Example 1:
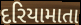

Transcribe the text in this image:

દરિયામાતા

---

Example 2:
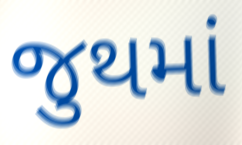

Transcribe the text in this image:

જુથમાં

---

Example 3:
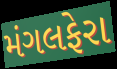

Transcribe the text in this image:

મંગલફેરા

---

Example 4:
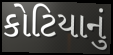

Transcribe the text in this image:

કોટિયાનું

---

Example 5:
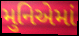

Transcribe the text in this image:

મુનિએમાં